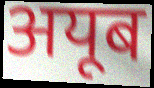
अयूब